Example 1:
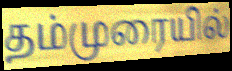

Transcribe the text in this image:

தம்முரையில்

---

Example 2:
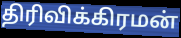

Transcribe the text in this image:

திரிவிக்கிரமன்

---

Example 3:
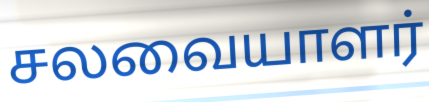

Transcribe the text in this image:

சலவையாளர்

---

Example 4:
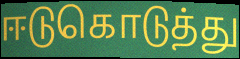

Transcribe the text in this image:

ஈடுகொடுத்து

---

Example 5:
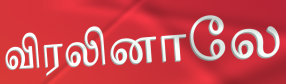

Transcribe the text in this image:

விரலினாலே